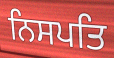
ਨਿਸਪਤਿ